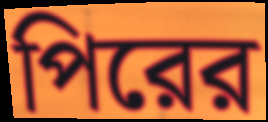
পিরের